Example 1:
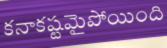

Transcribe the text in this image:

కనాకష్టమైపోయింది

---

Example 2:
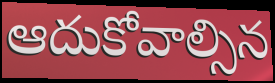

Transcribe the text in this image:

ఆదుకోవాల్సిన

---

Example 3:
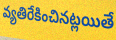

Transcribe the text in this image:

వ్యతిరేకించినట్లయితే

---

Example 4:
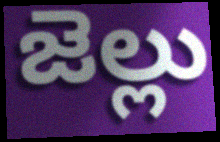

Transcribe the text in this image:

జెల్లు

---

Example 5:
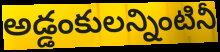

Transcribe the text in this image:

అడ్డంకులన్నింటినీ